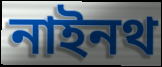
নাইনথ